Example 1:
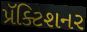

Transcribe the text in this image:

પ્રૅક્ટિશનર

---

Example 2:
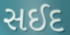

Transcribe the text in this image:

સઈદ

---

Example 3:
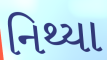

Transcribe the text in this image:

નિથ્યા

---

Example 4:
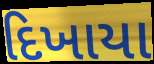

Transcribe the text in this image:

દિખાયા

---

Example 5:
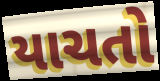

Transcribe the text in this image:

યાચતો